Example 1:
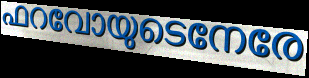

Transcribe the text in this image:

ഫറവോയുടെനേരേ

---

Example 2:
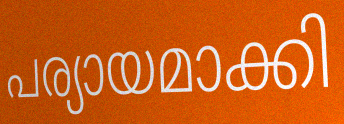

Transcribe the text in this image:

പര്യായമാക്കി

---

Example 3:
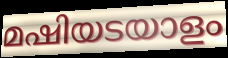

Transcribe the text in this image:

മഷിയടയാളം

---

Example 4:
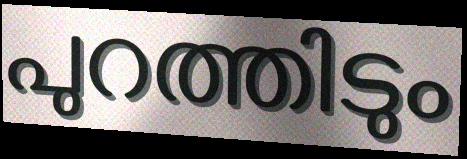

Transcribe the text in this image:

പുറത്തിടും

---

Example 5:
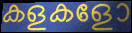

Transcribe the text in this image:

കളകളോ